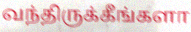
வந்திருக்கீங்களா